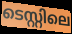
ടെസ്റ്റിലെ